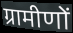
ग्रामीणों